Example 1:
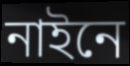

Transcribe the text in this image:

নাইনে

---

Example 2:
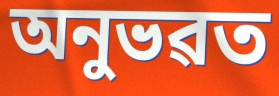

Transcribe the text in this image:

অনুভৱত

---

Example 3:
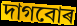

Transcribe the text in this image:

দাগবোৰ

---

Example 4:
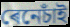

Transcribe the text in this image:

ৰেনেচাঁই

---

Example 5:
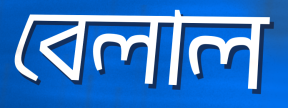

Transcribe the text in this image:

বেলাল